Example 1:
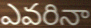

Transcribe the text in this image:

ఎవరినా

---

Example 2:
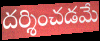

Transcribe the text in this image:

దర్శించడమే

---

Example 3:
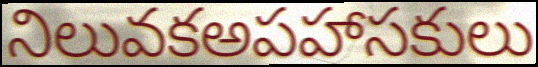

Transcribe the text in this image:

నిలువకఅపహాసకులు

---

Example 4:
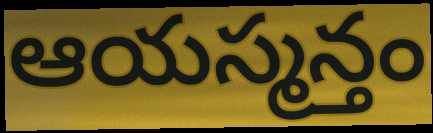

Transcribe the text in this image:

ఆయస్మన్తం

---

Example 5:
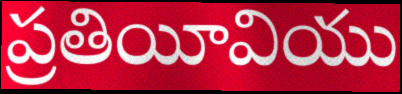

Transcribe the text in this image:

ప్రతియీవియు